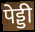
पेड्डी